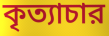
কৃত্যাচার